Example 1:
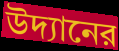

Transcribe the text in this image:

উদ্যানের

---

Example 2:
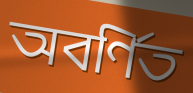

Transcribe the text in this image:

অবর্ণিত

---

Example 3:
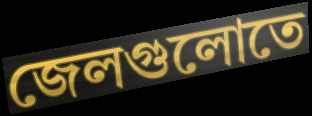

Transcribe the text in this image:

জেলগুলোতে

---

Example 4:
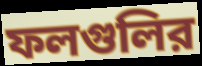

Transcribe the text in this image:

ফলগুলির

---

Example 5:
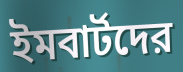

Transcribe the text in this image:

ইমবার্টদের